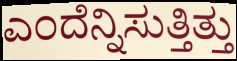
ಎಂದೆನ್ನಿಸುತ್ತಿತ್ತು